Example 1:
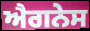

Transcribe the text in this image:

ਐਗਨੇਸ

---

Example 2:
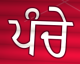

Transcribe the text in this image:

ਪੰਚੇ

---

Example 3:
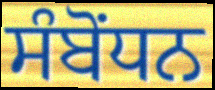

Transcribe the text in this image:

ਸੰਬੋੰਧਨ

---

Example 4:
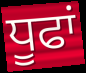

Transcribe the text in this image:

ਧੂਫਾਂ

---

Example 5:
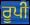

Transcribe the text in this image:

ਰੂਪੀ